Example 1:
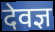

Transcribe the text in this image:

देवज्ञ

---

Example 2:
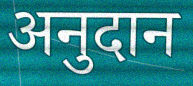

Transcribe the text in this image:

अनुदान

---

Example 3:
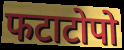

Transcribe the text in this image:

फटाटोपो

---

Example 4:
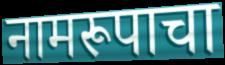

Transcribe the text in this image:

नामरूपाचा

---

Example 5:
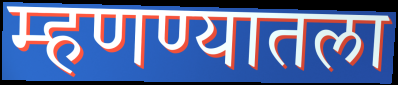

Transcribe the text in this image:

म्हणण्यातला